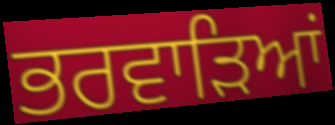
ਭਰਵਾੜਿਆਂ